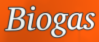
Biogas